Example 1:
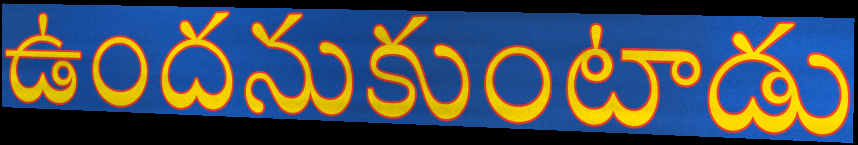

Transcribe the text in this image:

ఉందనుకుంటాడు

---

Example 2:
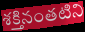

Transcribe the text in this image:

శక్తినంతటిని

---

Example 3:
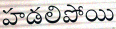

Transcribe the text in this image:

హడలిపోయి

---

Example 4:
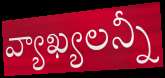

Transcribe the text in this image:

వ్యాఖ్యలన్నీ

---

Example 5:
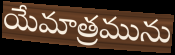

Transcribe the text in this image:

యేమాత్రమును